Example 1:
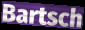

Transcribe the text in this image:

Bartsch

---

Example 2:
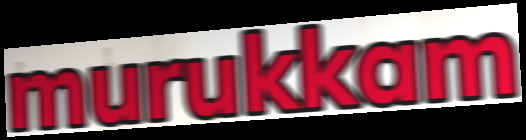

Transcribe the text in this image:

murukkam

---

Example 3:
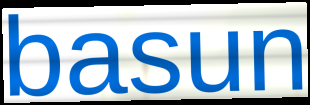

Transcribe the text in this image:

basun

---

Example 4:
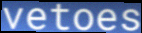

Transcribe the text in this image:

vetoes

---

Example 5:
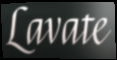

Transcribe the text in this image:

Lavate